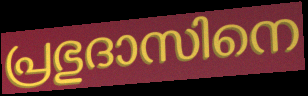
പ്രഭുദാസിനെ